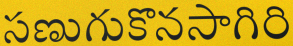
సణుగుకొనసాగిరి